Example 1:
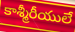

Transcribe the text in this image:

కాశ్మీరీయులే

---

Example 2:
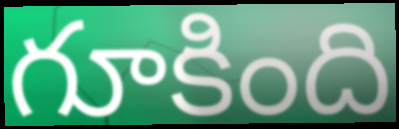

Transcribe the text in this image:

గూకింది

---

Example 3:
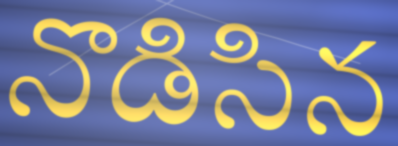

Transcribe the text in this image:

నొడిసిన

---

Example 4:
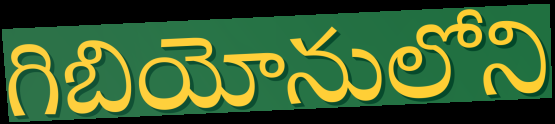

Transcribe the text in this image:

గిబియోనులోని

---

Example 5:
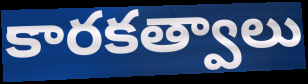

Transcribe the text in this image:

కారకత్వాలు